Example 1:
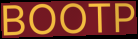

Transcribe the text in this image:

BOOTP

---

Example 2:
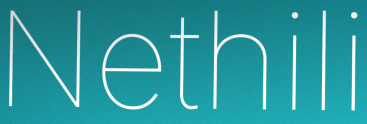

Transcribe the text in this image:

Nethili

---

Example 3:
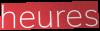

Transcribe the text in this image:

heures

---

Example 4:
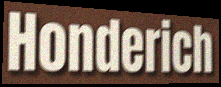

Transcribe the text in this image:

Honderich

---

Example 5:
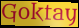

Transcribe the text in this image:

Goktay